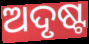
ଅଦୃଷ୍ଟ